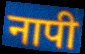
नापी